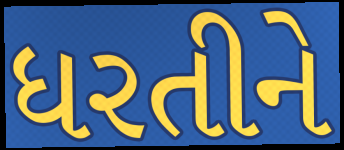
ધરતીને